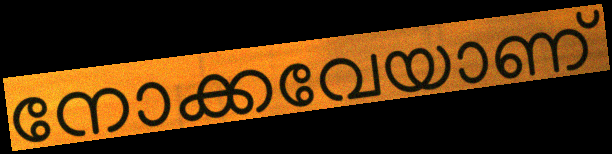
നോക്കവേയാണ്